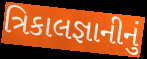
ત્રિકાલજ્ઞાનીનું